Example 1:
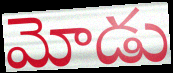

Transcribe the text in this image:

మోడు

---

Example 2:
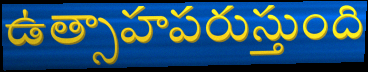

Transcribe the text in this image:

ఉత్సాహపరుస్తుంది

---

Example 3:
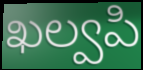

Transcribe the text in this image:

ఖల్వపి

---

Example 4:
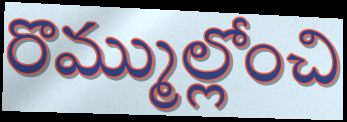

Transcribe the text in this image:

రొమ్ముల్లోంచి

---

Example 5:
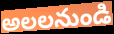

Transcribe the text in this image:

అలలనుండి